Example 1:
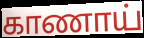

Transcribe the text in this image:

காணாய்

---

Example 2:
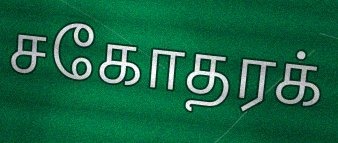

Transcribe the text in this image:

சகோதரக்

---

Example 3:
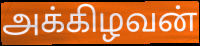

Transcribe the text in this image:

அக்கிழவன்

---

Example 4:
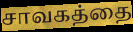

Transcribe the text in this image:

சாவகத்தை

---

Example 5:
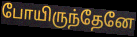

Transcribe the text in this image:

போயிருந்தேனே